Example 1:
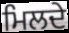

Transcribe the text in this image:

ਮਿਲਦੇ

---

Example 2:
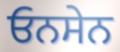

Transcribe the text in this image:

ਓਨਸੇਨ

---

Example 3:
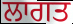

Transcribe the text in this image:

ਲਾਗਤ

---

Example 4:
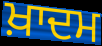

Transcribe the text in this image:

ਖ਼ਾਦਮ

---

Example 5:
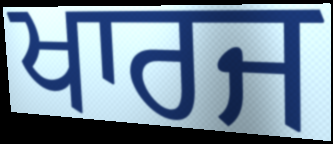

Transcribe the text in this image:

ਖਾਰਜ